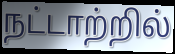
நட்டாற்றில்